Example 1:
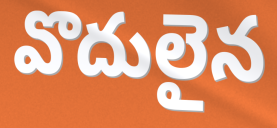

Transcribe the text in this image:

వొదులైన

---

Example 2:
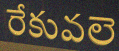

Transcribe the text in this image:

రేకువలె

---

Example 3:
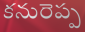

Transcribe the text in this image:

కనురెప్ప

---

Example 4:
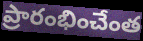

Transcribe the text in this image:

ప్రారంభించేంత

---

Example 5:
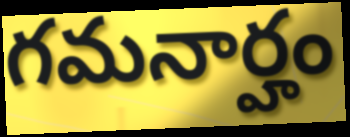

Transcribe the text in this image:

గమనార్హం